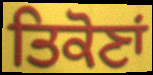
ਤਿਕੋਣਾਂ